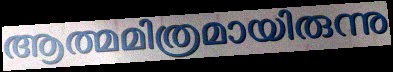
ആത്മമിത്രമായിരുന്നു